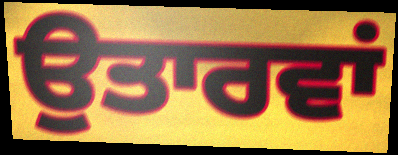
ਉਤਾਰਵਾਂ